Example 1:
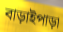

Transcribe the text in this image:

বাড়াইপাড়া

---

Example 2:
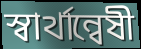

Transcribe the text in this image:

স্বার্থান্বেষী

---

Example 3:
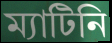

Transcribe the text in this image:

ম্যাটিনি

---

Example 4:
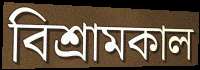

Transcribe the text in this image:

বিশ্রামকাল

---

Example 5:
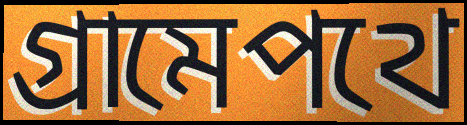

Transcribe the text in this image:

গ্রামেপথে